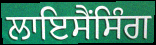
ਲਾਇਸੈਂਸਿੰਗ